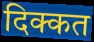
दिक्कत